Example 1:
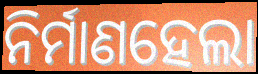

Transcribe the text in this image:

ନିର୍ମାଣହେଲା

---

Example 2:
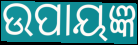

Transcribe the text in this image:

ଉପାୟଜ୍ଞ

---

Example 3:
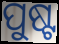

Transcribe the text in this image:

ପୁଷ୍ଟ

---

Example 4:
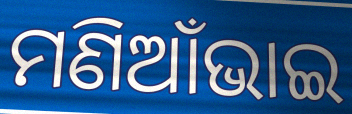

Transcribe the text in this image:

ମଣିଆଁଭାଇ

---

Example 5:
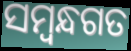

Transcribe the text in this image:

ସମ୍ବନ୍ଧଗତ